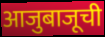
आजुबाजूची